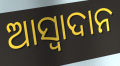
ଆସ୍ୱାଦାନ